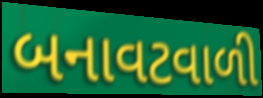
બનાવટવાળી